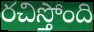
రచిస్తోంది